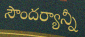
సౌందర్యాన్నీ